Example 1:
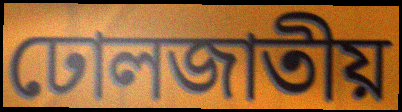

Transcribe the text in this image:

ঢোলজাতীয়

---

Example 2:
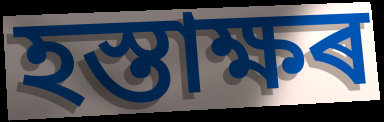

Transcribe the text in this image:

হস্তাক্ষৰ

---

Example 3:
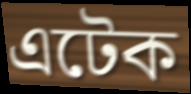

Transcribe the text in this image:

এটেক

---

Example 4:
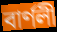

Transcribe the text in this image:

বাৰ্ণলী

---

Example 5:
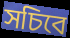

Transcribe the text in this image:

সচিবে